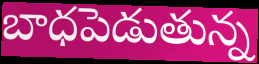
బాధపెడుతున్న